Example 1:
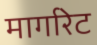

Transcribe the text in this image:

मार्गारेट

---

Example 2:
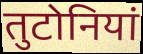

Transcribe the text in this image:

तुटोनियां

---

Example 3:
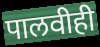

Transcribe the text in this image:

पालवीही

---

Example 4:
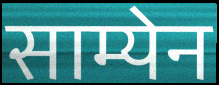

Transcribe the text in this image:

साम्येन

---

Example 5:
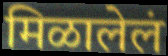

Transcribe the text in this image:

मिळालेलं